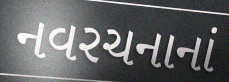
નવરચનાનાં